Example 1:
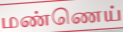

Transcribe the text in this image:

மண்ணெய்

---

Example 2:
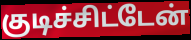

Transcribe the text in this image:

குடிச்சிட்டேன்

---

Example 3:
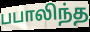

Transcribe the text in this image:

பபாலிந்த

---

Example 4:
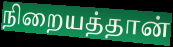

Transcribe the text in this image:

நிறையத்தான்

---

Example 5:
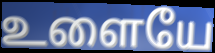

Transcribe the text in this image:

உளையே